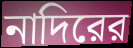
নাদিরের